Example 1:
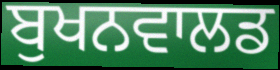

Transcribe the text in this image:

ਬੁਖਨਵਾਲਡ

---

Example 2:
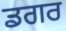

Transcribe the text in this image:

ਡਗਰ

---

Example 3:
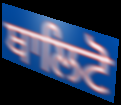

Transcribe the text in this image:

ਥਾਲਿਟੋ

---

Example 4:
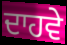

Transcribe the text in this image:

ਦਾਹਵੇ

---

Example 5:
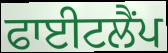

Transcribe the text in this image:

ਫਾਈਟਲੈਂਪ